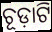
ଚୂଡ଼ାଟି